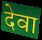
देवा